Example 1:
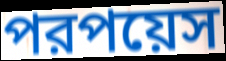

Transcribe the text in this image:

পরপয়েস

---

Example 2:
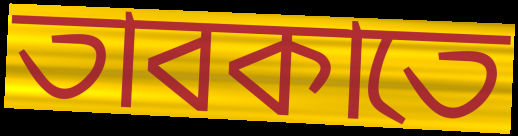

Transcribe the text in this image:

তাবকাতে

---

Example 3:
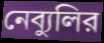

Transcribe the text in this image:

নেব্যুলির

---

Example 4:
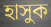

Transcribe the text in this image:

হাসুক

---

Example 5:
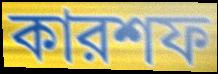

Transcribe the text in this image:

কারশফ